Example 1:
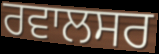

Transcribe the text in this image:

ਰਵਾਲਸਰ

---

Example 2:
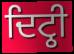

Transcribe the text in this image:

ਦਿਟ੍ਠੀ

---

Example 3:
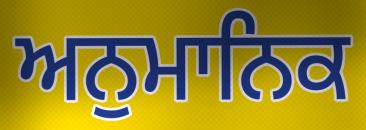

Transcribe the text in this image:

ਅਨੁਮਾਨਿਕ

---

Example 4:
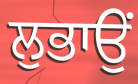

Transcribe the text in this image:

ਲੁਭਾਉਂ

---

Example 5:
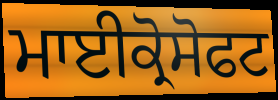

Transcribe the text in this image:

ਮਾਈਕ੍ਰੋਸੋਫਟ